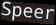
Speer